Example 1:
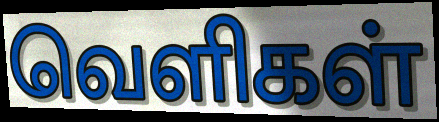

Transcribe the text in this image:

வெளிகள்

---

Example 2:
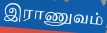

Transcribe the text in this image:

இராணுவம்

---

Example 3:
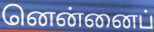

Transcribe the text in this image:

னென்னைப்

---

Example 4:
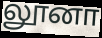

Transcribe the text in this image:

லூனா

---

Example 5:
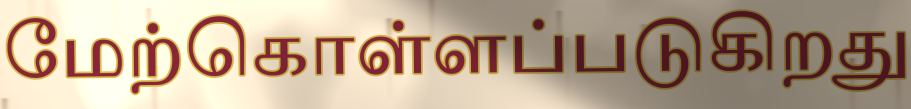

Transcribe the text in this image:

மேற்கொள்ளப்படுகிறது